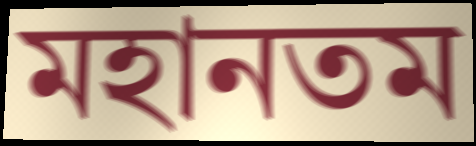
মহানতম